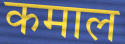
कमाल